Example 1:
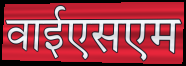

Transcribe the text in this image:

वाईएसएम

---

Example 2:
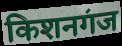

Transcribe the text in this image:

किशनगंज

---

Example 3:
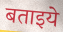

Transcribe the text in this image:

बताइये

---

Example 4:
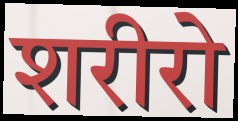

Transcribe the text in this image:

शरीरो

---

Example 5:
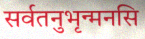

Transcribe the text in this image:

सर्वतनुभृन्मनसि